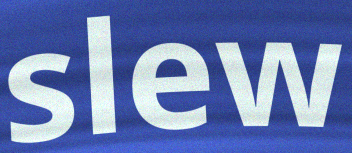
slew